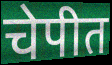
चेपीत